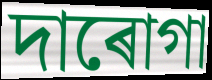
দাৰোগা